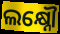
ଲକ୍ଷ୍ନୌ